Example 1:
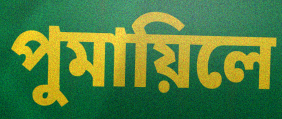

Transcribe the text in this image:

পুমায়িলে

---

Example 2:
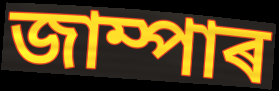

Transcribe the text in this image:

জাম্পাৰ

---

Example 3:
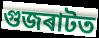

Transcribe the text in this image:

গুজৰাটত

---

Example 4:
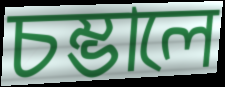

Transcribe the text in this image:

চম্ভালে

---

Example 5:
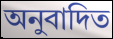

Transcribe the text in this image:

অনুবাদিত